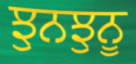
ਝੁਨਝੁਨੂ